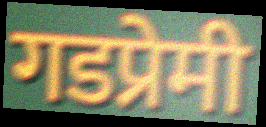
गडप्रेमी